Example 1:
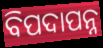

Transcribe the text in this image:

ବିପଦାପନ୍ନ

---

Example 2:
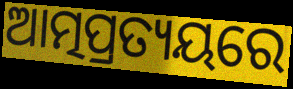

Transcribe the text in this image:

ଆତ୍ମପ୍ରତ୍ୟୟରେ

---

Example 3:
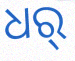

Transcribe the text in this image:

ଧର୍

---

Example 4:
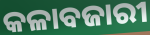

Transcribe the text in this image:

କଳାବଜାରୀ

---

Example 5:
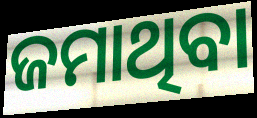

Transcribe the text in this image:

ଜମାଥିବା